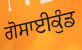
ਗੋਸਾਈਕੁੰਡ